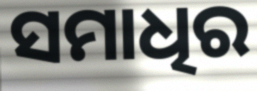
ସମାଧିର